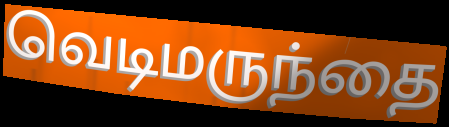
வெடிமருந்தை